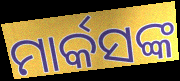
ମାର୍କସଙ୍କ